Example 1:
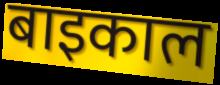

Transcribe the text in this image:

बाइकाल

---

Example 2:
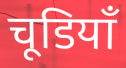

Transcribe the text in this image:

चूडियाँ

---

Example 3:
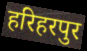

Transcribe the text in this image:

हरिहरपुर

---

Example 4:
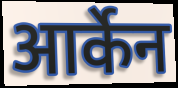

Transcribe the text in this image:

आर्केन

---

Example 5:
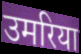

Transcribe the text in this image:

उमरिया